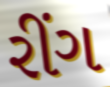
રીંગ